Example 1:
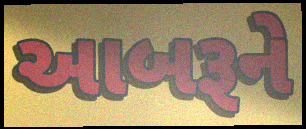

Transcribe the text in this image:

આબરૂને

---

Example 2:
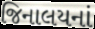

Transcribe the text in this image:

જિનાલયનાં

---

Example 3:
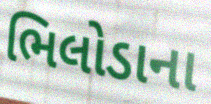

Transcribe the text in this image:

ભિલોડાના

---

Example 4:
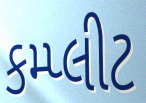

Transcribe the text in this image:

કમ્પ્લીટ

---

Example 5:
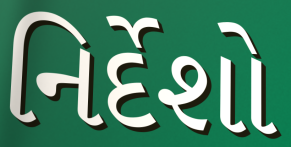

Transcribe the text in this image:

નિર્દેશો